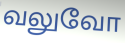
வலுவோ